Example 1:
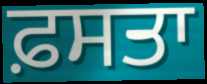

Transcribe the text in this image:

ਫ਼ਸਤਾ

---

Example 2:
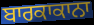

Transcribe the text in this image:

ਬਾਰਕਾਕਾਨਾ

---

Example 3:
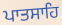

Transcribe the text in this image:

ਪਾਤਸਾਹਿ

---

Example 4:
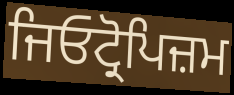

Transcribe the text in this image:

ਜਿਓਟ੍ਰੋਪਿਜ਼ਮ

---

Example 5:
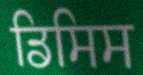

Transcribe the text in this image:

ਡਿਸਿਸ